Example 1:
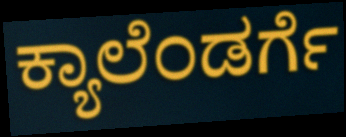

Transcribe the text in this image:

ಕ್ಯಾಲೆಂಡರ್ಗೆ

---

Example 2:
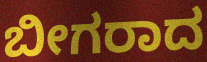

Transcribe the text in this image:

ಬೀಗರಾದ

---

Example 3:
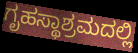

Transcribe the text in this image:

ಗೃಹಸ್ಥಾಶ್ರಮದಲ್ಲಿ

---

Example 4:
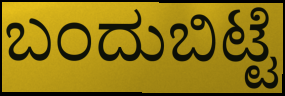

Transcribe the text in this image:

ಬಂದುಬಿಟ್ಟೆ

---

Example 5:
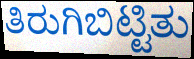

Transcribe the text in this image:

ತಿರುಗಿಬಿಟ್ಟಿತು